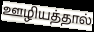
ஊழியத்தால்